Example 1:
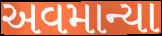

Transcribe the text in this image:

અવમાન્યા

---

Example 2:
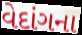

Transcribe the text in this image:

વેદાંગના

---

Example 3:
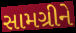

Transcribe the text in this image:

સામગ્રીને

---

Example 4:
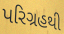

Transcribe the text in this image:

પરિગ્રહથી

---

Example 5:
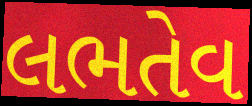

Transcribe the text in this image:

લભતેવ